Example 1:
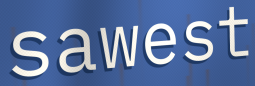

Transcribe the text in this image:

sawest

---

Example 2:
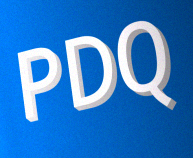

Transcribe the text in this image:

PDQ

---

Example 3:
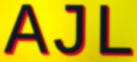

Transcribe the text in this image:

AJL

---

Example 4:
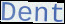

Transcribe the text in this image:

Dent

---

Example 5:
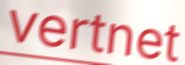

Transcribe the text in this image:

vertnet